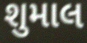
શુમાલ